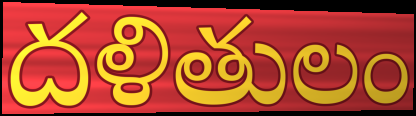
దళితులం